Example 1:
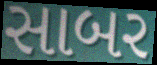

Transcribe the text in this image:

સાબર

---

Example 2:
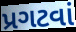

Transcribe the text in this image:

પ્રગટવાં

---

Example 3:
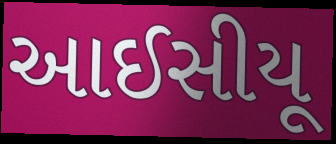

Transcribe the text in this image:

આઈસીયૂ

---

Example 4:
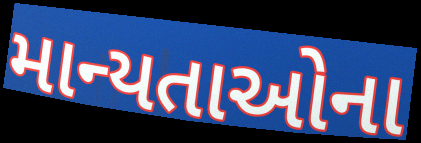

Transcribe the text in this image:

માન્યતાઓના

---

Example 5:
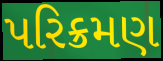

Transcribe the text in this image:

પરિક્રમણ